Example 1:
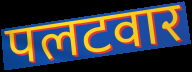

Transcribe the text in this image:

पलटवार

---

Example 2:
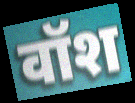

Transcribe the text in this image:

वॉश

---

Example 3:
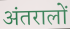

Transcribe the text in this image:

अंतरालों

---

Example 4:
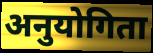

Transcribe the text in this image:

अनुयोगिता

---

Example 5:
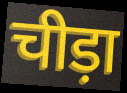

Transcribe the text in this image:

चीड़ा